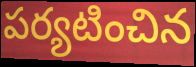
పర్యటించిన